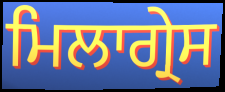
ਮਿਲਾਗ੍ਰੇਸ